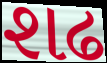
શઢ